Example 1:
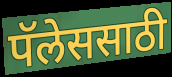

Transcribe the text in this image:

पॅलेससाठी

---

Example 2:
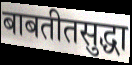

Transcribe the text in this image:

बाबतीतसुद्धा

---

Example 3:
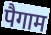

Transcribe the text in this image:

पैगाम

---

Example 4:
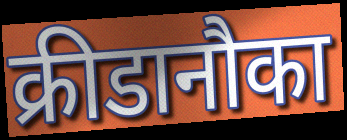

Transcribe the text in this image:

क्रीडानौका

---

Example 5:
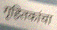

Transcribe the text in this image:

गृहितकांचा